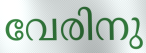
വേരിനു